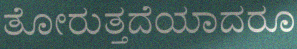
ತೋರುತ್ತದೆಯಾದರೂ